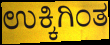
ಉಕ್ಕಿಗಿಂತ